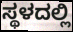
ಸ್ಥಳದಲ್ಲಿ